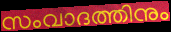
സംവാദത്തിനും